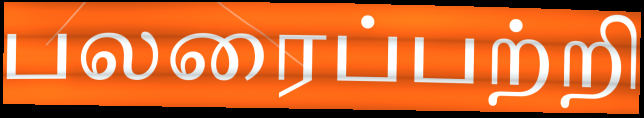
பலரைப்பற்றி